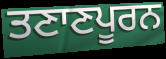
ਤਣਾਣਪੂਰਨ